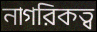
নাগরিকত্ব